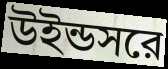
উইন্ডসরে